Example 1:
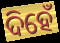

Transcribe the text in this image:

ଦିହେଁ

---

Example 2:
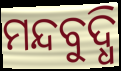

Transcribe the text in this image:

ମନ୍ଦବୁଦ୍ଧି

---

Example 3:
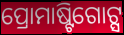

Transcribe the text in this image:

ପ୍ରୋମାଷ୍ଟିଗୋଟ୍ସ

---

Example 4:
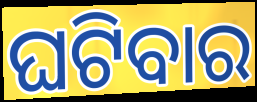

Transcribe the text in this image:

ଘଟିବାର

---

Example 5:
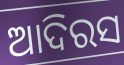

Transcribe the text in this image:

ଆଦିରସ